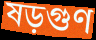
ষড়গুণ